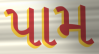
પામ